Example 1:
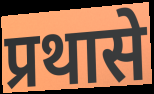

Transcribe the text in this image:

प्रथासे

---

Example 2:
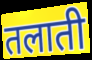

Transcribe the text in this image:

तलाती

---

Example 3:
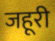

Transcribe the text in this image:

जहूरी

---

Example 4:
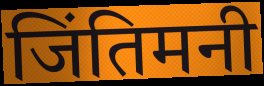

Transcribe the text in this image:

जिंतिमनी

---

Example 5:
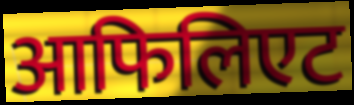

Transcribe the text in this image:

आफिलिएट